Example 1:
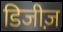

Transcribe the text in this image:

डिजीज़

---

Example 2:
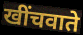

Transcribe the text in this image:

खींचवाते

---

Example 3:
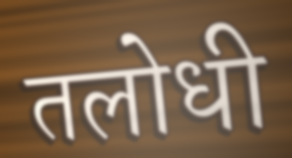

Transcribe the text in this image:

तलोधी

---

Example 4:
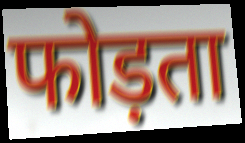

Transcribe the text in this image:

फोड़ता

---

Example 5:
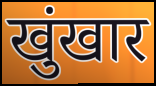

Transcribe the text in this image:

खुंखार